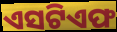
ଏସଟିଏଫ